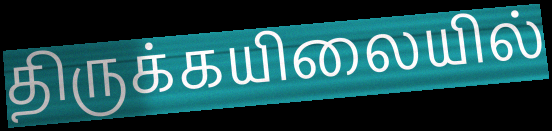
திருக்கயிலையில்